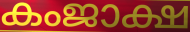
കംജാക്ഷ